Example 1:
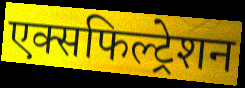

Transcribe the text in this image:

एक्सफिल्ट्रेशन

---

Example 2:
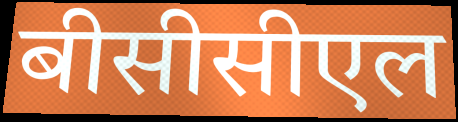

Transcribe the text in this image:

बीसीसीएल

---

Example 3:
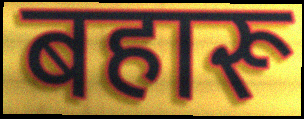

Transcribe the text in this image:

बहारू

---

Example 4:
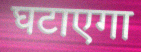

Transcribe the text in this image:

घटाएगा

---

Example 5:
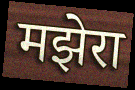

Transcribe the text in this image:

मझेरा